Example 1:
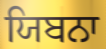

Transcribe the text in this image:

ਯਿਬਨਾ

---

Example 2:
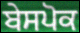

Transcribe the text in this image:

ਬੇਸਪੋਕ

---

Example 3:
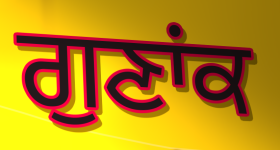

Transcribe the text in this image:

ਗੁਣਾਂਕ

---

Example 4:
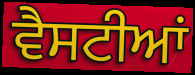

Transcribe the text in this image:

ਵੈਸਟੀਆਂ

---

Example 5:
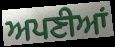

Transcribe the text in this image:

ਅਪਣੀਆਂ